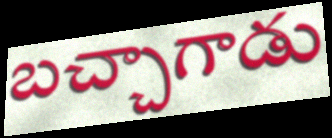
బచ్చాగాడు